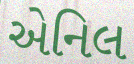
એનિલ